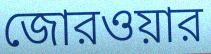
জোরওয়ার